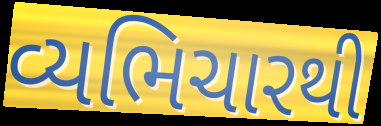
વ્યભિચારથી